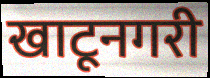
खाटूनगरी